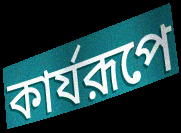
কার্যরূপে